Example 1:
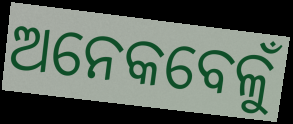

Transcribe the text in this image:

ଅନେକବେଳୁଁ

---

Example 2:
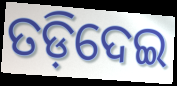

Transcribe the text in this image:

ତଡ଼ିଦେଇ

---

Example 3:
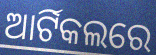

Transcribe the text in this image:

ଆର୍ଟିକଲରେ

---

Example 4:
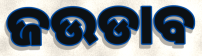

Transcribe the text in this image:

ଜଉଡାବ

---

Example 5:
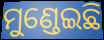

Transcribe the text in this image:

ମୁଣ୍ଡେଇଛି